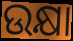
ଉକ୍ଷା